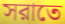
সরাতে